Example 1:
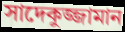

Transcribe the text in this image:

সাদেকুজ্জামান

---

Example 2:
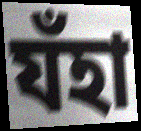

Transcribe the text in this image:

যঁহা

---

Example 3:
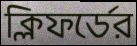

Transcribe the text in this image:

ক্লিফর্ডের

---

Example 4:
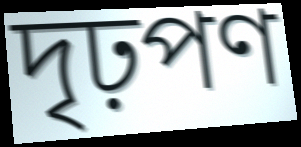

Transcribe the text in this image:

দৃঢ়পণ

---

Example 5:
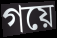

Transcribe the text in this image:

গয়ে